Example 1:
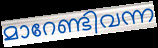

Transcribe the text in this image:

മാറേണ്ടിവന്ന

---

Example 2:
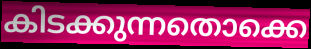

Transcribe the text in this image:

കിടക്കുന്നതൊക്കെ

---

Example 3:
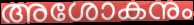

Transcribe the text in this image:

അശോകനും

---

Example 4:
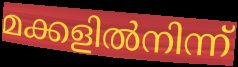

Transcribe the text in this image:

മക്കളിൽനിന്ന്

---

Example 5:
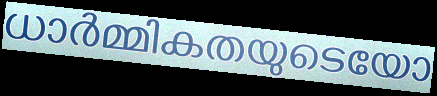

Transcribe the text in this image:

ധാർമ്മികതയുടെയോ